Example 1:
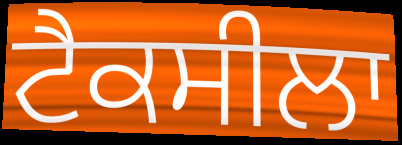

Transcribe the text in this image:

ਟੈਕਸੀਲਾ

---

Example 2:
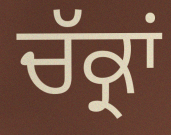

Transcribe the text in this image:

ਚੱਕ੍ਰਾਂ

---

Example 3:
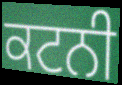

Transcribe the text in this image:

ਕਟਨੀ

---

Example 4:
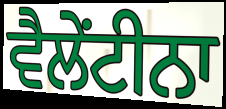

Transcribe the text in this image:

ਵੈਲੇਂਟੀਨਾ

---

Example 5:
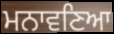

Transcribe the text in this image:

ਮਨਾਵਣਿਆ